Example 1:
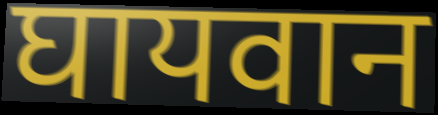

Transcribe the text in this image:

घायवान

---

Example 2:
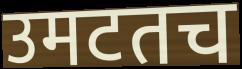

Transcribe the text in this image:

उमटतच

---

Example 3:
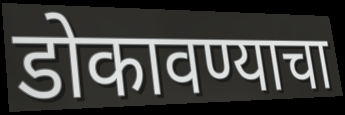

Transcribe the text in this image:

डोकावण्याचा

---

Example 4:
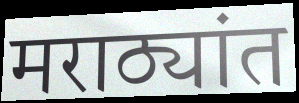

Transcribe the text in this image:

मराठ्यांत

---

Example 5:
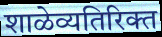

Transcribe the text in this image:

शाळेव्यतिरिक्त